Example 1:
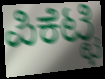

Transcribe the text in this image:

ಪಿಕೆಟ್ಟಿ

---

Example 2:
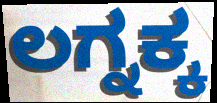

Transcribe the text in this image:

ಲಗ್ನಕ್ಕ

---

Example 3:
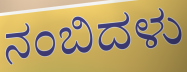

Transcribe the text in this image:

ನಂಬಿದಳು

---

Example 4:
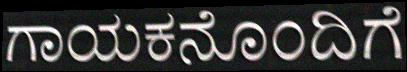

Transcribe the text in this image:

ಗಾಯಕನೊಂದಿಗೆ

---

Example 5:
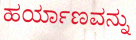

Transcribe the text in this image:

ಹರ್ಯಾಣವನ್ನು